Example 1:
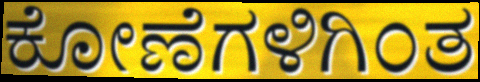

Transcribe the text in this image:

ಕೋಣೆಗಳಿಗಿಂತ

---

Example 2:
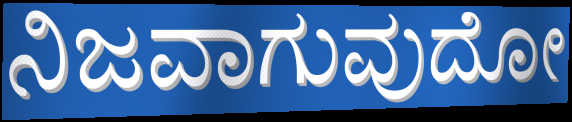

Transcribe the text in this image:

ನಿಜವಾಗುವುದೋ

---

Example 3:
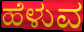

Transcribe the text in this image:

ಹೆಳುವ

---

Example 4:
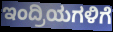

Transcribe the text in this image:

ಇಂದ್ರಿಯಗಳಿಗೆ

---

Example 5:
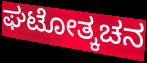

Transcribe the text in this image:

ಘಟೋತ್ಕಚನ